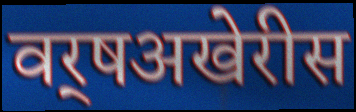
वर्षअखेरीस